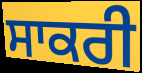
ਸਾਕਰੀ